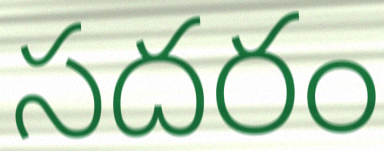
సదరం